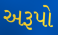
અરૂપો